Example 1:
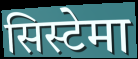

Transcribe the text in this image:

सिस्टेमा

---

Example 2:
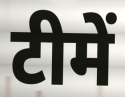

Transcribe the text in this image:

टीमें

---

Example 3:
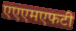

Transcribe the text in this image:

एएएमएफटी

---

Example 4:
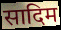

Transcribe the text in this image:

सादिम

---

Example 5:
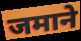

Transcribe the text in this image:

जमाने